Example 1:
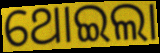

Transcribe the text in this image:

ଥୋଇଲା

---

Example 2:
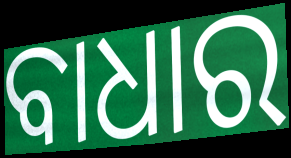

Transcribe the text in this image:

ବାଧାର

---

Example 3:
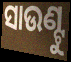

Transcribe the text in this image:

ସାଉଣ୍ଟୁ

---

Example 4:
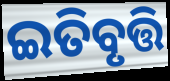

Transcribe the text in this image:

ଇତିବୃତ୍ତି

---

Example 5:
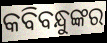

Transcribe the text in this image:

କବିବନ୍ଧୁଙ୍କର